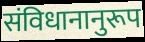
संविधानानुरूप